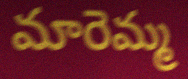
మారెమ్మ